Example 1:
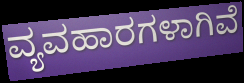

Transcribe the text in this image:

ವ್ಯವಹಾರಗಳಾಗಿವೆ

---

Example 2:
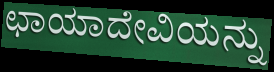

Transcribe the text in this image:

ಛಾಯಾದೇವಿಯನ್ನು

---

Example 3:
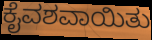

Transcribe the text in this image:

ಕೈವಶವಾಯಿತು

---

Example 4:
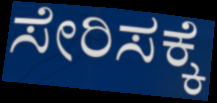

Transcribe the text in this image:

ಸೇರಿಸಕ್ಕೆ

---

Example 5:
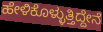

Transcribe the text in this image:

ಹೇಳಿಕೊಳ್ಳುತ್ತಿದ್ದೇನೆ